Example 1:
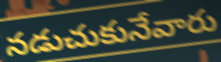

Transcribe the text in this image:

నడుచుకునేవారు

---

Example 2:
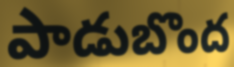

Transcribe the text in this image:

పాడుబొంద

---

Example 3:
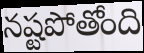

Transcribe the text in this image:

నష్టపోతోంది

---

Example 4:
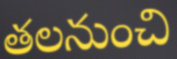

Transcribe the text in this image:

తలనుంచి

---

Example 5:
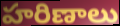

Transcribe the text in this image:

హరిణాలు